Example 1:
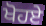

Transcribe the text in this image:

ਖੋਹਏ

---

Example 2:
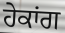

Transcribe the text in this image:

ਹੇਕਾਂਗ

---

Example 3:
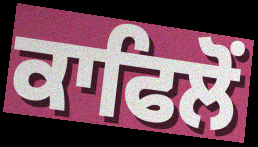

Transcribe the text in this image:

ਕਾਫਿਲੋਂ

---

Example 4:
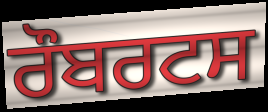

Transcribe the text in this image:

ਰੌਬਰਟਸ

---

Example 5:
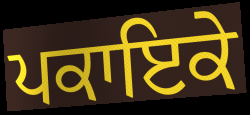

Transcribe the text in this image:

ਪਕਾਇਕੇ